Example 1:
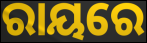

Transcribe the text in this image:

ରାୟରେ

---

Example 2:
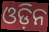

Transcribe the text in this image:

ଓଡ଼ିନ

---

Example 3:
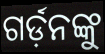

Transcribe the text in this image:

ଗର୍ଡ଼ନଙ୍କୁ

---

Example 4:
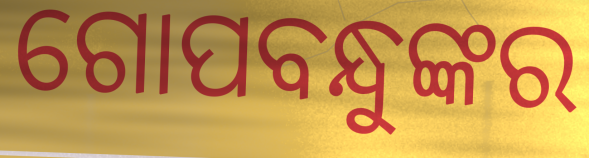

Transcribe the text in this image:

ଗୋପବନ୍ଧୁଙ୍କର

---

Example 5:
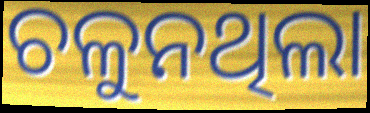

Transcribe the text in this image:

ଚଳୁନଥିଲା